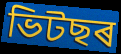
ভিটছৰ